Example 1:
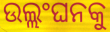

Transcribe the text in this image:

ଉଲ୍ଲଂଘନକୁ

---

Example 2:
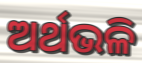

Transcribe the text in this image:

ଅର୍ଥଭଳି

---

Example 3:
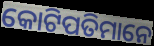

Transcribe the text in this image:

କୋଟିପତିମାନେ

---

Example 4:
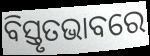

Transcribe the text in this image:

ବିସ୍ତୃତଭାବରେ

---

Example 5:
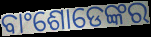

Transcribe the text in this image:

ବାଂଶୋଡେଙ୍କର